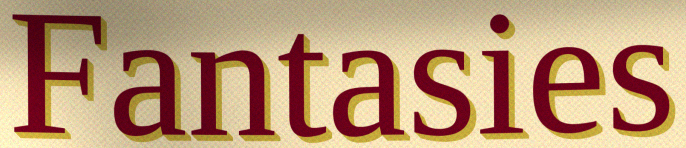
Fantasies